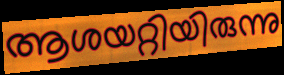
ആശയറ്റിയിരുന്നു